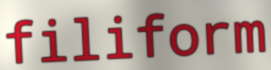
filiform